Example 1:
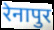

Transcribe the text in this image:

रेनापुर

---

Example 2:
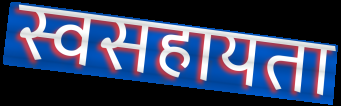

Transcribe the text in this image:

स्‍वसहायता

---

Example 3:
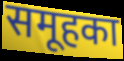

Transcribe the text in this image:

समूहका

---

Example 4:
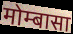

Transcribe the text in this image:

मोम्बासा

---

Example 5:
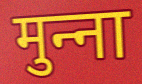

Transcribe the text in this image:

मुन्ना